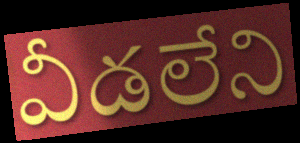
వీడలేని